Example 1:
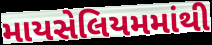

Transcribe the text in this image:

માયસેલિયમમાંથી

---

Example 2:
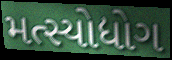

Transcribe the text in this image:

મત્સ્યોદ્યોગ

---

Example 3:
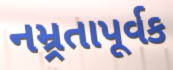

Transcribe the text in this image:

નમ્ર્રતાપૂર્વક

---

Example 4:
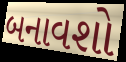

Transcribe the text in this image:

બનાવશો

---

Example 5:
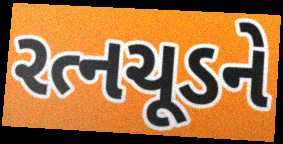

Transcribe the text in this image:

રત્નચૂડને